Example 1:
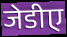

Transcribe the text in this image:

जेडीए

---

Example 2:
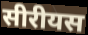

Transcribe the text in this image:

सीरीयस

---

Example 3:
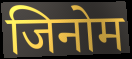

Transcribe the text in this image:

जिनोम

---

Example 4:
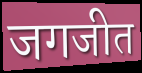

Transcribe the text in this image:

जगजीत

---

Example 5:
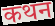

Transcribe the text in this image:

कथन